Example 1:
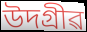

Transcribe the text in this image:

উদগ্ৰীৱ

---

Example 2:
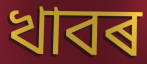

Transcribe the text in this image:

খাবৰ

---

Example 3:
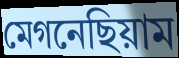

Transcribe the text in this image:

মেগনেছিয়াম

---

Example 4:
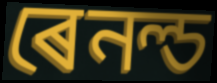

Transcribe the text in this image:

ৰেনল্ড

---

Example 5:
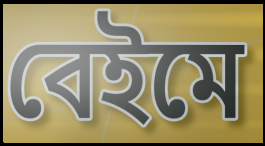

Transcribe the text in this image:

বেইমে